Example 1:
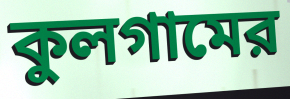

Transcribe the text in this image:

কুলগামের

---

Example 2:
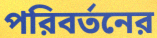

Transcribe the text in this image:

পরিবর্তনের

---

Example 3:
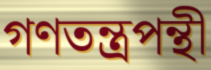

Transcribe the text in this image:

গণতন্ত্রপন্থী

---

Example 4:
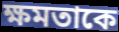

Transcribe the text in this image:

ক্ষমতাকে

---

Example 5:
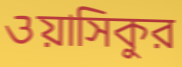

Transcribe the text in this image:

ওয়াসিকুর